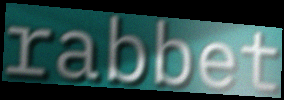
rabbet